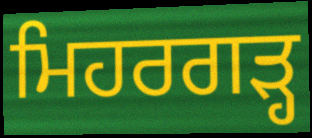
ਮਿਹਰਗੜ੍ਹ